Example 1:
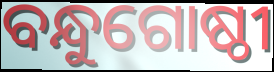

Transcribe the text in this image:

ବନ୍ଧୁଗୋଷ୍ଠୀ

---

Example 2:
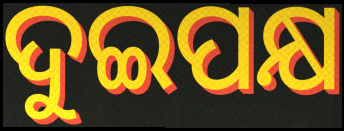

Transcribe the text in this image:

ଦୁଇପକ୍ଷ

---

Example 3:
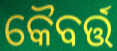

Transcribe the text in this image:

କୈବର୍ତ୍ତ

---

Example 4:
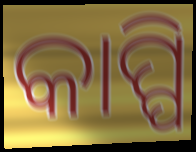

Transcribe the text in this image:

କାପ୍ପି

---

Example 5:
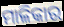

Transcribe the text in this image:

ମାଳିକାର